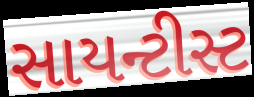
સાયન્ટીસ્ટ